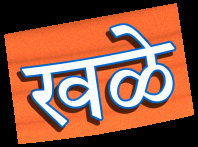
खळे